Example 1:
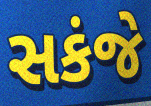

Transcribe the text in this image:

સકંજે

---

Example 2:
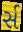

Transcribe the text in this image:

ર્સ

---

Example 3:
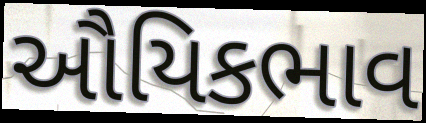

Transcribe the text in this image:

ઔયિકભાવ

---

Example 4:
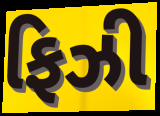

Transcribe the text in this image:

ફિઝી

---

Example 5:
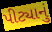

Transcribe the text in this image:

પીટ્યાનું